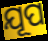
ଯୂପ